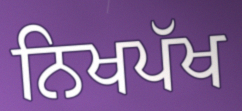
ਨਿਖਪੱਖ